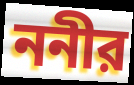
ননীর